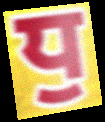
ਧੁ